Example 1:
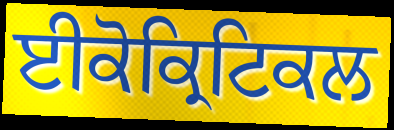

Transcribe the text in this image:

ਈਕੋਕ੍ਰਿਟਿਕਲ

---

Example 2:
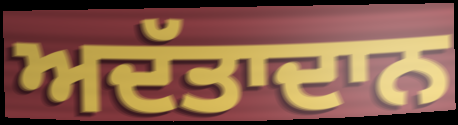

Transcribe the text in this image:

ਅਦੱਤਾਦਾਨ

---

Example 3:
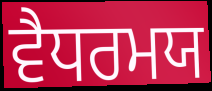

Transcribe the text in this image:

ਵੈਧਰਮਯ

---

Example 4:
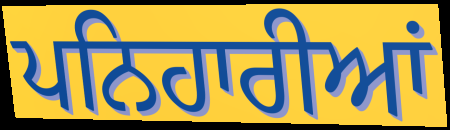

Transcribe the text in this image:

ਪਨਿਹਾਰੀਆਂ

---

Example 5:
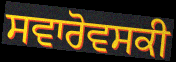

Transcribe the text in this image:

ਸਵਾਰੋਵਸਕੀ